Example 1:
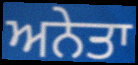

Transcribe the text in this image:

ਅਨੇਤਾ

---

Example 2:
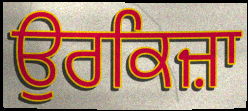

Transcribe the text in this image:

ਉਰਕਿਜ਼ਾ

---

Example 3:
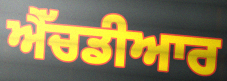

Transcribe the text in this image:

ਐੱਚਡੀਆਰ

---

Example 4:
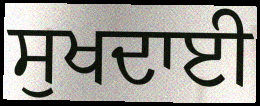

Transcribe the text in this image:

ਸੁਖਦਾਈ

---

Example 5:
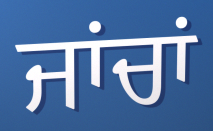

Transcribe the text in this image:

ਜਾਂਚਾਂ